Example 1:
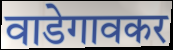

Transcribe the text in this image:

वाडेगावकर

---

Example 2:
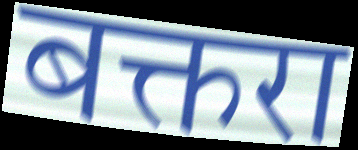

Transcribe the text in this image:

बक्तरा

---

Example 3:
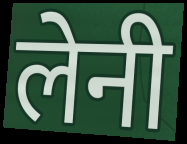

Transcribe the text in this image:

लेनी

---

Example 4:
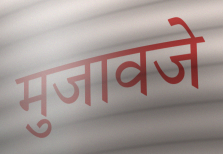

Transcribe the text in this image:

मुजावजे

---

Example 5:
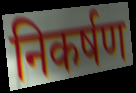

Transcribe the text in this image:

निकर्षण